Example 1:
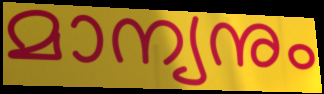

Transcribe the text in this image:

മാന്യനും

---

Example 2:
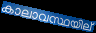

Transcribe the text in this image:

കാലാവസ്ഥയില്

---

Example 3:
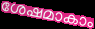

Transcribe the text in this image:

ശേഷമാകാം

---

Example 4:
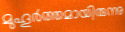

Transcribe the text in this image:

മുഹൂർത്തമായിരുന്നു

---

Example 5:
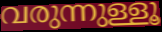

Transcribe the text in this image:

വരുന്നുള്ളൂ